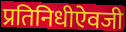
प्रतिनिधीऐवजी